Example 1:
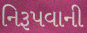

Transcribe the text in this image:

નિરૂપવાની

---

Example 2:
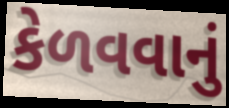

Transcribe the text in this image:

કેળવવાનું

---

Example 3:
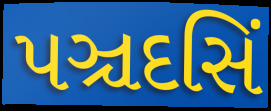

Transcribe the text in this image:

પઞ્ચદસિં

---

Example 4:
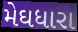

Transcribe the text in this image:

મેઘધારા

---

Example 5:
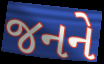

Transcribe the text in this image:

જનને